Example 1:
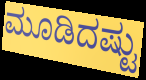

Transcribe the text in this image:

ಮೂಡಿದಷ್ಟು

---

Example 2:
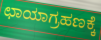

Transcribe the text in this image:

ಛಾಯಾಗ್ರಹಣಕ್ಕೆ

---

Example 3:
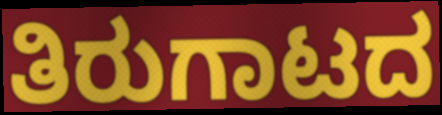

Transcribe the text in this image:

ತಿರುಗಾಟದ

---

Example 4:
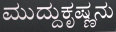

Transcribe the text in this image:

ಮುದ್ದುಕೃಷ್ಣನು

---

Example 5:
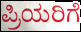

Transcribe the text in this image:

ಪ್ರಿಯರಿಗೆ